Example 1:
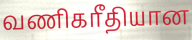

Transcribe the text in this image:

வணிகரீதியான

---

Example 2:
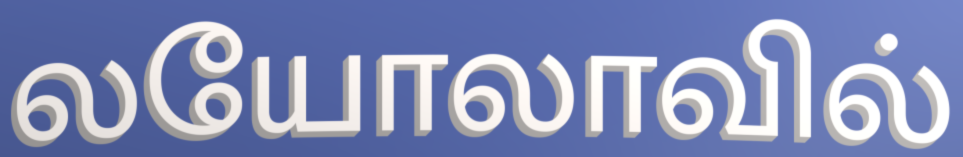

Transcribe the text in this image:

லயோலாவில்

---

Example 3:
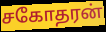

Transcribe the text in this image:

சகோதரன்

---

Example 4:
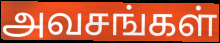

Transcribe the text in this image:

அவசங்கள்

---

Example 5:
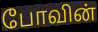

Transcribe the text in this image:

போவின்